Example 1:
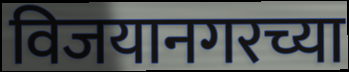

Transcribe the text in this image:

विजयानगरच्या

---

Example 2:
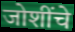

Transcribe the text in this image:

जोशींचे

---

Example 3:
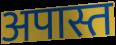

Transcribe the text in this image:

अपास्त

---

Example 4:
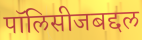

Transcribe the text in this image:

पॉलिसीजबद्दल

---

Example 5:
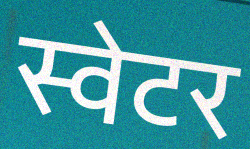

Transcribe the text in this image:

स्वेटर